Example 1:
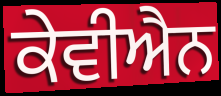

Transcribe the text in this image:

ਕੇਵੀਐਨ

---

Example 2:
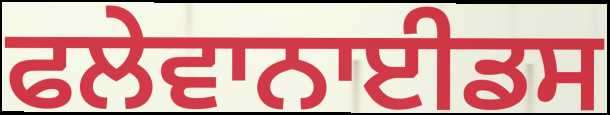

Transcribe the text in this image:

ਫਲੇਵਾਨਾਈਡਸ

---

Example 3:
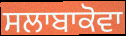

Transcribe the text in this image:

ਸਲਾਬਾਕੋਵਾ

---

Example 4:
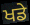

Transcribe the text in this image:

ਖਡੇ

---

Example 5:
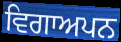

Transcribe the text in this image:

ਵਿਗਾਅਪਨ